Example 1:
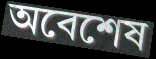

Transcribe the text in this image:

অবেশেষ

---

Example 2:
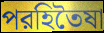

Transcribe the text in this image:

পরহিতৈষা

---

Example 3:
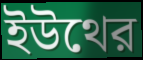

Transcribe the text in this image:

ইউথের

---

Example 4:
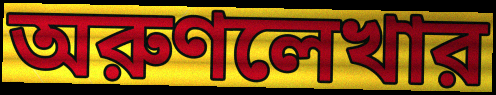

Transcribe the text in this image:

অরুণলেখার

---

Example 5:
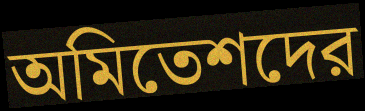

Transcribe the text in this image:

অমিতেশদের